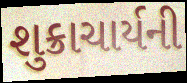
શુક્રાચાર્યની